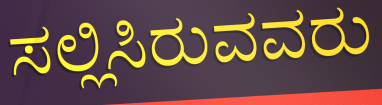
ಸಲ್ಲಿಸಿರುವವರು